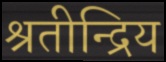
श्रतीन्द्रिय